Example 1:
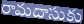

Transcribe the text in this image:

రామదాసుకు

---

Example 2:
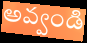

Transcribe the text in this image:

అవ్వండి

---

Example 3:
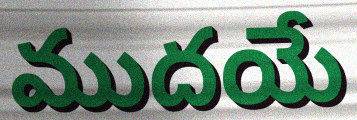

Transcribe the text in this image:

ముదయే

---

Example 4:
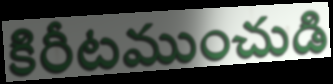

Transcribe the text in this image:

కిరీటముంచుడి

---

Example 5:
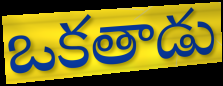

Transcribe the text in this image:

ఒకతాడు